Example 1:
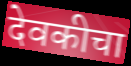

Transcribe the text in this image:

देवकीचा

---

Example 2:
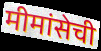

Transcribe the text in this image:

मीमांसेची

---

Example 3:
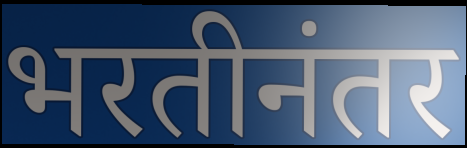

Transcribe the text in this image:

भरतीनंतर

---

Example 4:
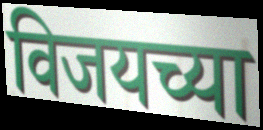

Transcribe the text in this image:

विजयच्या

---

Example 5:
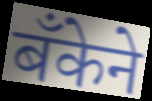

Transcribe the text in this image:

बँकेने